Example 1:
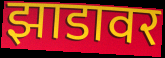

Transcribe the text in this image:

झाडावर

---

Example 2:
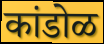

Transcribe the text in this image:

कांडोळ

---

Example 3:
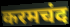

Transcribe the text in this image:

करमचंद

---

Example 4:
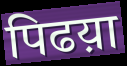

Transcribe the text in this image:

पिढय़ा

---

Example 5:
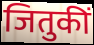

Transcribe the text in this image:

जितुकीं